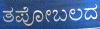
ತಪೋಬಲದ